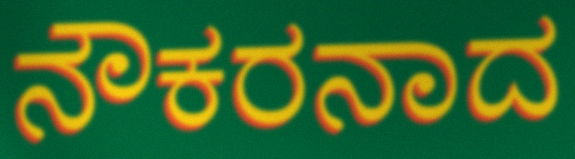
ನೌಕರನಾದ